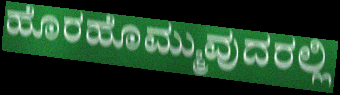
ಹೊರಹೊಮ್ಮುವುದರಲ್ಲಿ